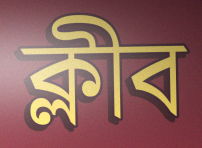
ক্লীব